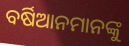
ବର୍ଷିଆନମାନଙ୍କୁ